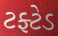
ટફ્ટેડ